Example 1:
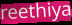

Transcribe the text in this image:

reethiya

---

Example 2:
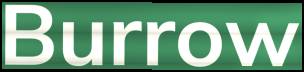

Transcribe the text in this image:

Burrow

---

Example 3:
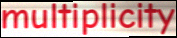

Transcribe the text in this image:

multiplicity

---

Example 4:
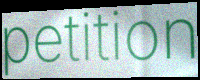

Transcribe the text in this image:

petition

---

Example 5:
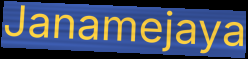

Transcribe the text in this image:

Janamejaya